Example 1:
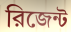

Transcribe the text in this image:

রিজেন্ট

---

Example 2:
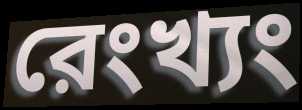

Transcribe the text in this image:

রেংখ্যং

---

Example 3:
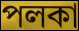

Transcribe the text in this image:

পলকা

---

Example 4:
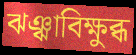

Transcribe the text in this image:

ঝঞ্ঝাবিক্ষুব্ধ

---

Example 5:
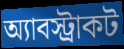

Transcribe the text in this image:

অ্যাবস্ট্রাকট